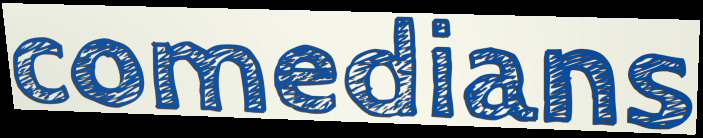
comedians